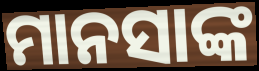
ମାନସାଙ୍କ